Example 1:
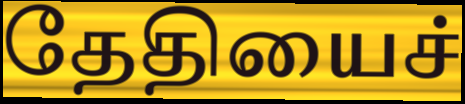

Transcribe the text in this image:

தேதியைச்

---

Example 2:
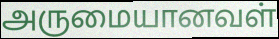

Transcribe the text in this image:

அருமையானவள்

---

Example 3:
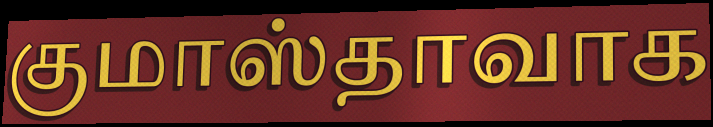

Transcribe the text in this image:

குமாஸ்தாவாக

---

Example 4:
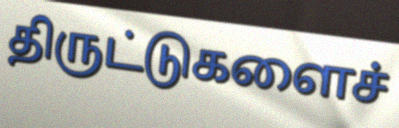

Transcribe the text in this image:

திருட்டுகளைச்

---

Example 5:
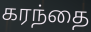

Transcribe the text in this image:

கரந்தை